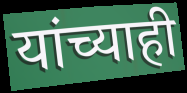
यांच्याही